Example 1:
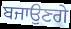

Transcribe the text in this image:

ਬਜਾਉਣਗੇ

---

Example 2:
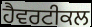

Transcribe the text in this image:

ਹੈਵਰਟੀਕਲ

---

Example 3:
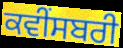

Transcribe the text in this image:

ਕਵੀਂਸਬਰੀ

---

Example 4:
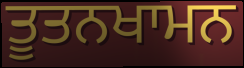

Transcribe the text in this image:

ਤੂਤਨਖਾਮਨ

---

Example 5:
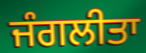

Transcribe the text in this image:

ਜੰਗਲੀਤਾ